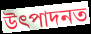
উৎপাদনত